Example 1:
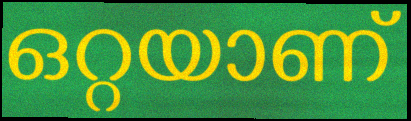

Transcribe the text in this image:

ഒറ്റയാണ്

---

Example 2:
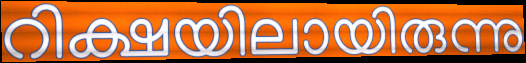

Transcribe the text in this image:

റിക്ഷയിലായിരുന്നു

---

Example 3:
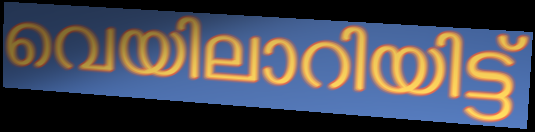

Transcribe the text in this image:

വെയിലാറിയിട്ട്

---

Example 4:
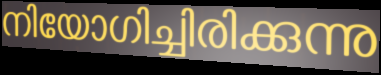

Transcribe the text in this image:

നിയോഗിച്ചിരിക്കുന്നു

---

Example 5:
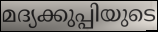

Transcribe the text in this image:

മദ്യക്കുപ്പിയുടെ